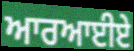
ਆਰਆਈਏ